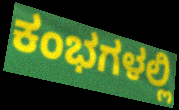
ಕಂಭಗಳಲ್ಲಿ